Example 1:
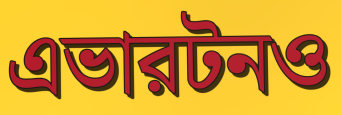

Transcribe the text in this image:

এভারটনও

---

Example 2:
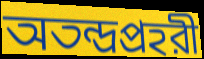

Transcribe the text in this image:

অতন্দ্রপ্রহরী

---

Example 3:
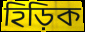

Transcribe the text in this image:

হিড়িক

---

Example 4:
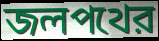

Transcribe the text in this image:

জলপথের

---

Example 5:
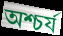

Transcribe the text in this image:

অশ্চর্য